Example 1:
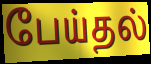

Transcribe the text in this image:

பேய்தல்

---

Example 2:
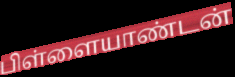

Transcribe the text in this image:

பிள்ளையாண்டன்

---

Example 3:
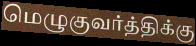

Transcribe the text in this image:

மெழுகுவர்த்திக்கு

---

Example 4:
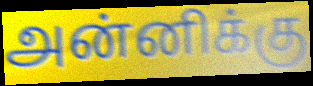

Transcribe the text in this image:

அன்னிக்கு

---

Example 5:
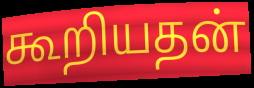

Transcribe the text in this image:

கூறியதன்